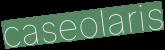
caseolaris